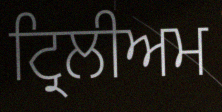
ਟ੍ਰਿਲੀਅਮ